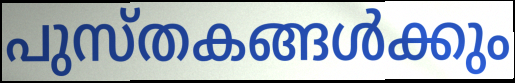
പുസ്തകങ്ങൾക്കും